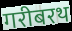
गरीबरथ